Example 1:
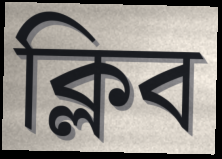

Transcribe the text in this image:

ক্লিব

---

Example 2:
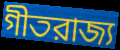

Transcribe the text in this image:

গীতরাজ্য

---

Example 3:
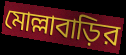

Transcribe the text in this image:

মোল্লাবাড়ির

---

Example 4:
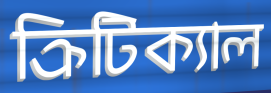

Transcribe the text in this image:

ক্রিটিক্যাল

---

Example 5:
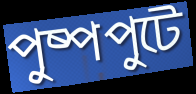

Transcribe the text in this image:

পুষ্পপুটে